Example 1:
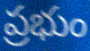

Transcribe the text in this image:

ప్రభుం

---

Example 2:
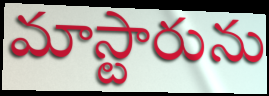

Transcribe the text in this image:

మాస్టారును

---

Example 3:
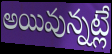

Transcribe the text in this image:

అయివున్నట్లే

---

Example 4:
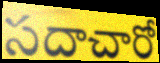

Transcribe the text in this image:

సదాచారో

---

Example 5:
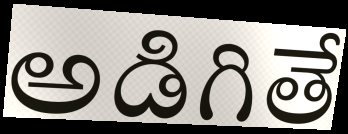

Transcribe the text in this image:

అడిగితే